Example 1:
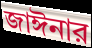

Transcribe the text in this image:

জাঈনার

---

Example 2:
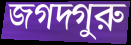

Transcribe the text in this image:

জগদ্গুরু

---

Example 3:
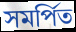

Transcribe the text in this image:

সমর্পিত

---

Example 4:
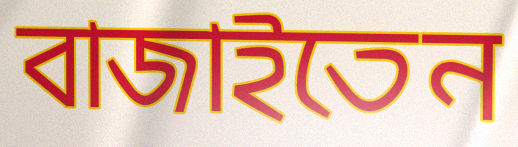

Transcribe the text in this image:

বাজাইতেন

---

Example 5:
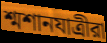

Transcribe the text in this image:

শ্মশানযাত্রীরা